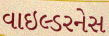
વાઇલ્ડરનેસ